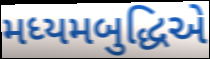
મધ્યમબુદ્ધિએ